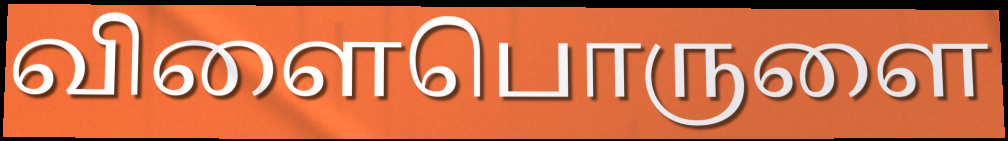
விளைபொருளை